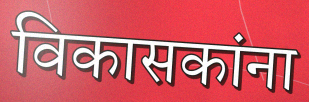
विकासकांना